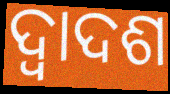
ଦ୍ଵାଦଶ